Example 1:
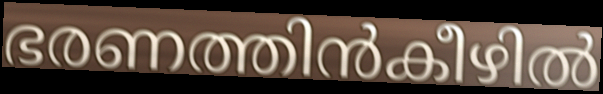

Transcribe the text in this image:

ഭരണത്തിൻകീഴിൽ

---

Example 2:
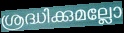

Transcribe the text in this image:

ശ്രദ്ധിക്കുമല്ലോ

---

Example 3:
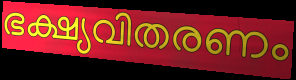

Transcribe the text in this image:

ഭക്ഷ്യവിതരണം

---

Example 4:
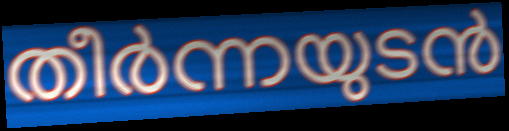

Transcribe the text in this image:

തീർന്നയുടൻ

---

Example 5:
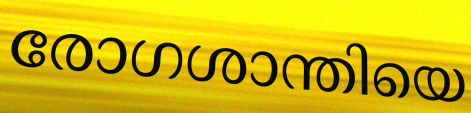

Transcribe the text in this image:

രോഗശാന്തിയെ